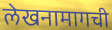
लेखनामागची